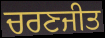
ਚਰਣਜੀਤ